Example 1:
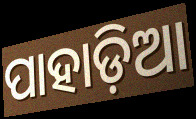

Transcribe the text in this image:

ପାହାଡ଼ିଆ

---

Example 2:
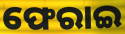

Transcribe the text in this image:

ଫେରାଇ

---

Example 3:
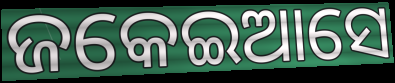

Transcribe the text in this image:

ଜକେଇଆସେ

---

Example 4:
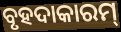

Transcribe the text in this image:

ବୃହଦାକାରମ୍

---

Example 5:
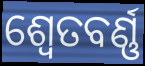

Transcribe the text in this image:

ଶ୍ୱେତବର୍ଣ୍ଣ